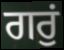
ਗਰੁਂ